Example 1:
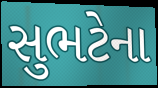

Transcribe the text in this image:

સુભટેના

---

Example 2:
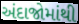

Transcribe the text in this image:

અંદાજોમાંથી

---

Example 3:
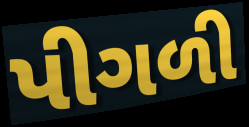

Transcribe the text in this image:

પીગળી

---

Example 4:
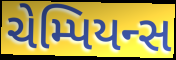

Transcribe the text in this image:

ચેમ્પિયન્સ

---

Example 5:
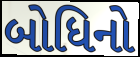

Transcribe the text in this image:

બોધિનો